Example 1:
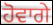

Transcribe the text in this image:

ਹੋਵਾਗੇ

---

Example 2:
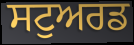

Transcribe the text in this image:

ਸਟੁਅਰਡ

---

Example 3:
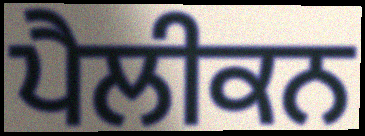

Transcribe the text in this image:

ਪੈਲੀਕਨ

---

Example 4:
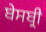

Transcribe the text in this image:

ਬੇਸਬ੍ਰੀ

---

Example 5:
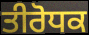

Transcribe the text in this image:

ਤੀਰੋਧਕ